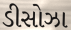
ડીસોઝા